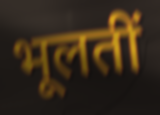
भूलतीं